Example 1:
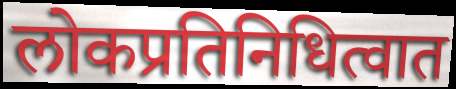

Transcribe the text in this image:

लोकप्रतिनिधित्वात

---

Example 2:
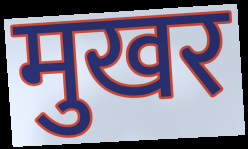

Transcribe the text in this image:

मुखर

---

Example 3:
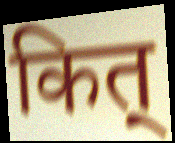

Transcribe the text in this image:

कित्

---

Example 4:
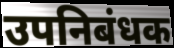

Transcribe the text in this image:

उपनिबंधक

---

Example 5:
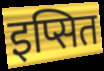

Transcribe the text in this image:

इप्सित